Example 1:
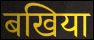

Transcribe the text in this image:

बखिया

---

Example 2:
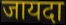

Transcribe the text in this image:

जायदा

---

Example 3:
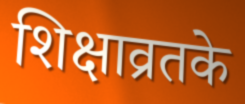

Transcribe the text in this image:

शिक्षाव्रतके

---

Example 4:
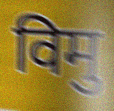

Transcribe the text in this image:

विमु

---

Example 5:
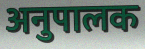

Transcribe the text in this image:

अनुपालक